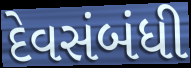
દેવસંબંધી